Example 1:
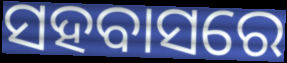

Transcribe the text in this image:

ସହବାସରେ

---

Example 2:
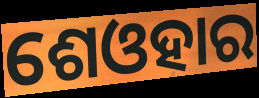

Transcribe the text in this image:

ଶେଓହାର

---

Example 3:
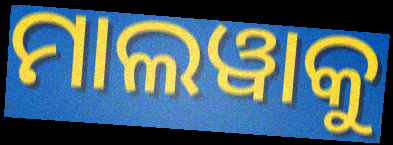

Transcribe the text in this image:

ମାଲୱାକୁ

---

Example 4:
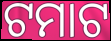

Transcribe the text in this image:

ଟମାଟ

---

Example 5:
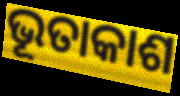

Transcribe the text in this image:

ଭୂତାକାଶ